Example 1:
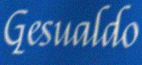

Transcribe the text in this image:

Gesualdo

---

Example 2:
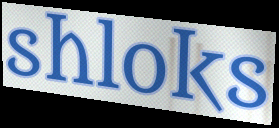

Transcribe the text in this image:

shloks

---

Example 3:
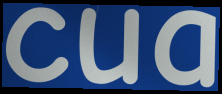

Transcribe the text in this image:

cua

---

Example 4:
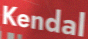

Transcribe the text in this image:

Kendal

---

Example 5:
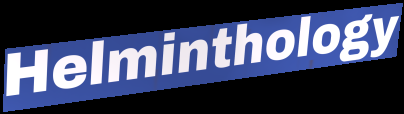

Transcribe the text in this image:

Helminthology